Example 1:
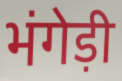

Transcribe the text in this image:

भंगेड़ी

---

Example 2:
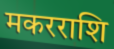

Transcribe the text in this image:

मकरराशि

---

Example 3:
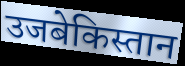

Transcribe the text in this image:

उजबेकिस्तान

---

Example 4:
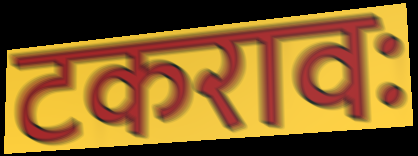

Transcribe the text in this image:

टकरावः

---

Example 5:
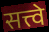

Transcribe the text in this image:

सत्त्वे